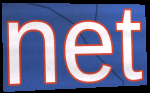
net